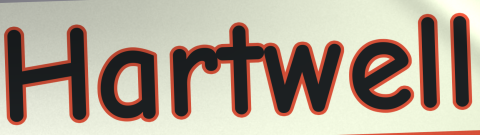
Hartwell